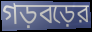
গড়বড়ের